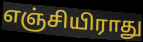
எஞ்சியிராது